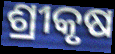
ଶ୍ରୀକୃଷ